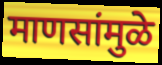
माणसांमुळे